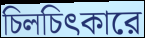
চিলচিৎকারে